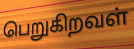
பெறுகிறவள்